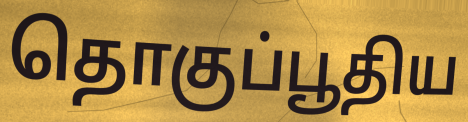
தொகுப்பூதிய